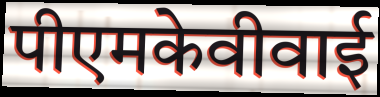
पीएमकेवीवाई